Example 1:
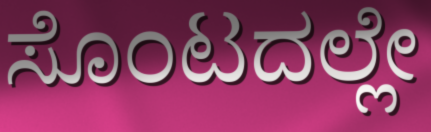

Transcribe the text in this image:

ಸೊಂಟದಲ್ಲೇ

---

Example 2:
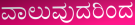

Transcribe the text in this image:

ವಾಲುವುದರಿಂದ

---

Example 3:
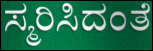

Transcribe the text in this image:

ಸ್ಮರಿಸಿದಂತೆ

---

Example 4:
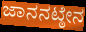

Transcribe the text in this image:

ಜಾನನಟ್ಠೇನ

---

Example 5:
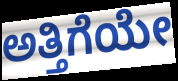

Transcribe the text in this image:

ಅತ್ತಿಗೆಯೇ